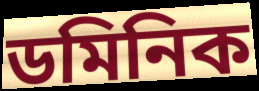
ডমিনিক